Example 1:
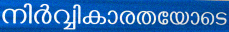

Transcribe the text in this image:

നിർവ്വികാരതയോടെ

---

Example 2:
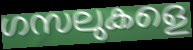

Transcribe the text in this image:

ഗസലുകളെ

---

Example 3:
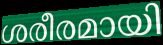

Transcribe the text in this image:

ശരീരമായി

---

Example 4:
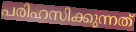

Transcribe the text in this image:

പരിഹസിക്കുന്നത്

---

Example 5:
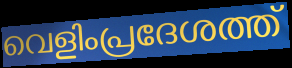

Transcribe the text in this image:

വെളിംപ്രദേശത്ത്